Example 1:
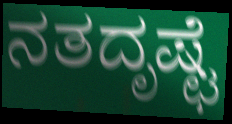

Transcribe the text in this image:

ನತದೃಷ್ಟೆ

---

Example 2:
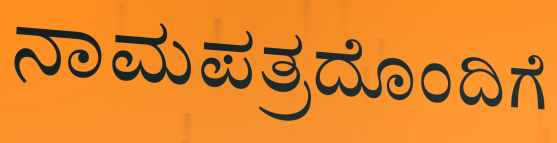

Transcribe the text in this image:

ನಾಮಪತ್ರದೊಂದಿಗೆ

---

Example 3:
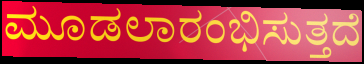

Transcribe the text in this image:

ಮೂಡಲಾರಂಭಿಸುತ್ತದೆ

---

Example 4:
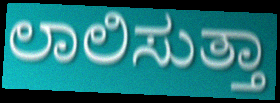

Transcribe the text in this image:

ಲಾಲಿಸುತ್ತಾ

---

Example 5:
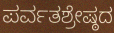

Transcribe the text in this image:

ಪರ್ವತಶ್ರೇಷ್ಠದ